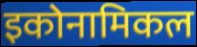
इकोनामिकल